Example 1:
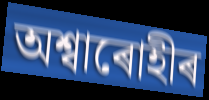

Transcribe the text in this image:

অশ্বাৰোহীৰ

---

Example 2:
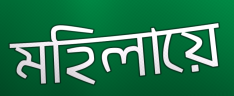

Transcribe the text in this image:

মহিলায়ে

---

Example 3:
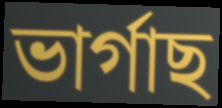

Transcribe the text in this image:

ভাৰ্গাছ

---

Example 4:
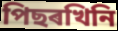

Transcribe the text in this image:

পিছৰখিনি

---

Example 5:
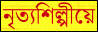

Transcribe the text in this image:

নৃত্যশিল্পীয়ে